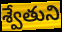
శ్వేతుని